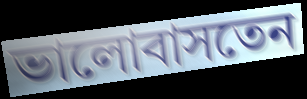
ভালোবাসতেন